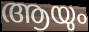
ആയും